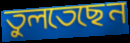
তুলতেছেন